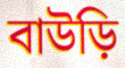
বাউড়ি